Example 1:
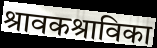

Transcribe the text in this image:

श्रावकश्राविका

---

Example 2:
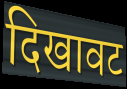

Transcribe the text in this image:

दिखावट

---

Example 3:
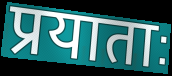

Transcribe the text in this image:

प्रयाताः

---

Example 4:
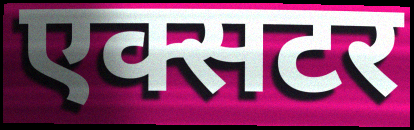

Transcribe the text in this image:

एक्सटर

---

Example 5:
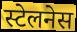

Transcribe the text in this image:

स्टेलनेस